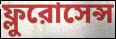
ফ্লুরোসেন্স